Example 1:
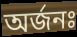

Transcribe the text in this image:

অর্জনঃ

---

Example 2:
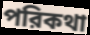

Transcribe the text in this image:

পরিকথা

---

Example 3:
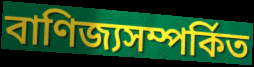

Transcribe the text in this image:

বাণিজ্যসম্পর্কিত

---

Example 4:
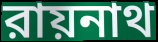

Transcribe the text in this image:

রায়নাথ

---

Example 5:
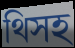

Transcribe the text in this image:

থিসহ